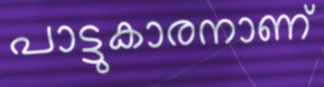
പാട്ടുകാരനാണ്